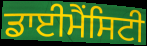
ਡਾਈਮੈਂਸਿਟੀ